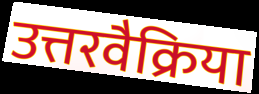
उत्तरवैक्रिया